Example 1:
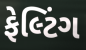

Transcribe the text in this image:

ફેલ્ટિંગ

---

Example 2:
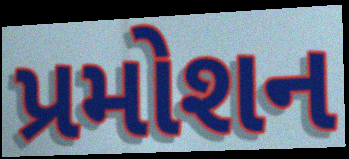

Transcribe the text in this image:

પ્રમોશન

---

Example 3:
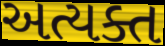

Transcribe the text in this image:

અત્યક્ત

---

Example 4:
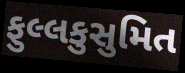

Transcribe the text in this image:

ફુલ્લકુસુમિત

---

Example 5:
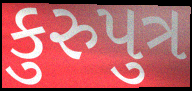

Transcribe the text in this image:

કુરુપુત્ર